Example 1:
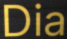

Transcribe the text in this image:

Dia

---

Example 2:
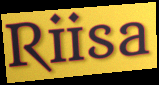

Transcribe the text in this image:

Riisa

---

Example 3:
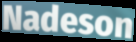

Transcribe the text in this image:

Nadeson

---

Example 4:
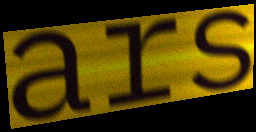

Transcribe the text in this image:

ars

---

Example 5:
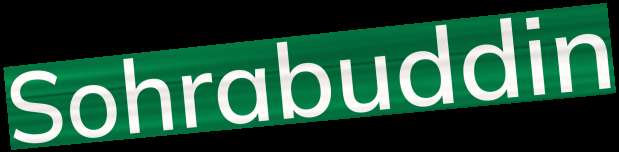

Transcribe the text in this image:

Sohrabuddin